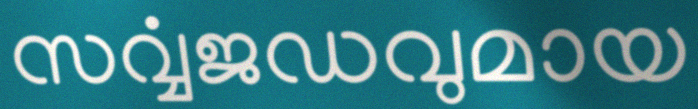
സൎവ്വജഡവുമായ